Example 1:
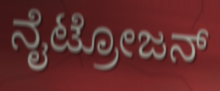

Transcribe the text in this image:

ನೈಟ್ರೋಜನ್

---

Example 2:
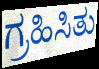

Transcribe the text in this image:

ಗ್ರಹಿಸಿತು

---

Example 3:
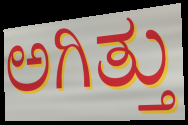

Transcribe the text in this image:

ಅಗಿತ್ತು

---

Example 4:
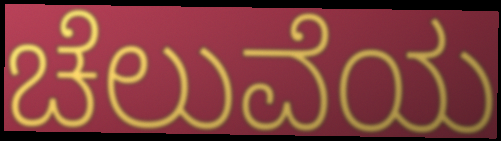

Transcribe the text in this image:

ಚೆಲುವೆಯ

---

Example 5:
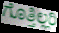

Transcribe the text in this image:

ಗೊತ್ತಿಲ್ಲರಿ